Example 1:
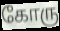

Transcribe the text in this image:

கோரு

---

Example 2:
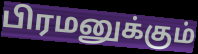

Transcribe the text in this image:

பிரமனுக்கும்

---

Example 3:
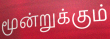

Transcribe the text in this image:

மூன்றுக்கும்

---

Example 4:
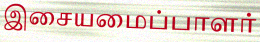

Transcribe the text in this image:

இசையமைப்பாளர்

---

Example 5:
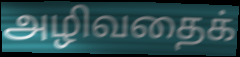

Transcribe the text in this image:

அழிவதைக்